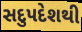
સદુપદેશથી